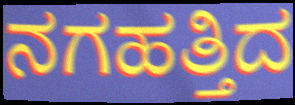
ನಗಹತ್ತಿದ